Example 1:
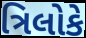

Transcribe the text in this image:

ત્રિલોકે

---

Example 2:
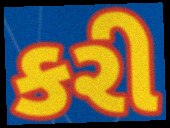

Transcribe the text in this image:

કરી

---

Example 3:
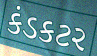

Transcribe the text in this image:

કંડકટર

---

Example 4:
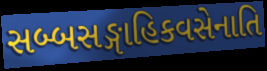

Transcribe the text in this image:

સબ્બસઙ્ગાહિકવસેનાતિ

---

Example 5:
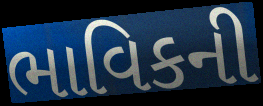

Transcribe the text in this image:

ભાવિકની